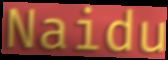
Naidu